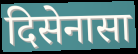
दिसेनासा